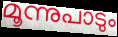
മൂന്നുപാടും